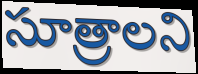
సూత్రాలని